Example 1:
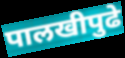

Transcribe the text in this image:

पालखीपुढे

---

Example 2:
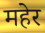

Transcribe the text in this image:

महेर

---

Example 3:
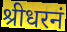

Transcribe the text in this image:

श्रीधरनं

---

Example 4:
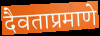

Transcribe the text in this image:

दैवताप्रमाणे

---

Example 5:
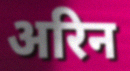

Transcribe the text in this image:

अरिन